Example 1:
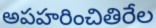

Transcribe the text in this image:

అపహరించితిరేల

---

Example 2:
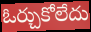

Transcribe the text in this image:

ఓర్చుకోలేదు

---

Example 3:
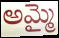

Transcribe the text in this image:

అమ్మై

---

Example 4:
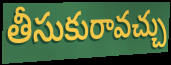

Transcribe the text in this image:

తీసుకురావచ్చు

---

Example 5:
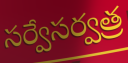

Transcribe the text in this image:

సర్వేసర్వత్ర